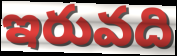
ఇరువది